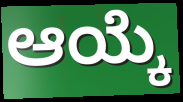
ಆಯ್ಕೆ